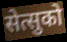
सेत्सुको